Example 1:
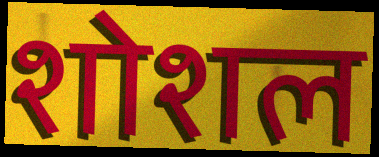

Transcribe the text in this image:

शोशल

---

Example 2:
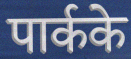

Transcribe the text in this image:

पार्कके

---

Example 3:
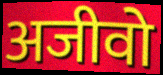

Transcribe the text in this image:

अजीवो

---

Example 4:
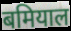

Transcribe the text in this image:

बमियाल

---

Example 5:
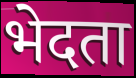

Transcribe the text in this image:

भेदता